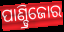
ପାଣ୍ଡ୍ରିଜୋର